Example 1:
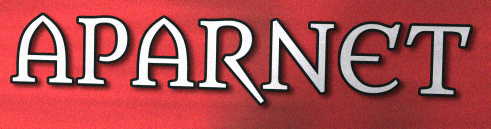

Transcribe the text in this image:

APARNET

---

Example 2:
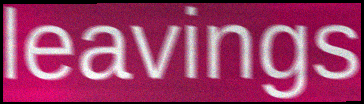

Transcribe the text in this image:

leavings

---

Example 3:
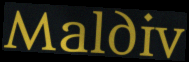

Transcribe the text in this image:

Maldiv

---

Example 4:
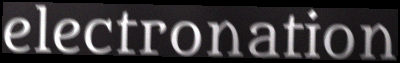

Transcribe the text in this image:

electronation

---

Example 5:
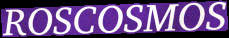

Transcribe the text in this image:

ROSCOSMOS